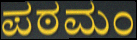
ಪಠಮಂ